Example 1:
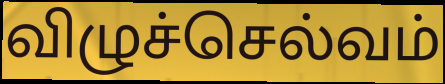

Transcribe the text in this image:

விழுச்செல்வம்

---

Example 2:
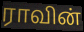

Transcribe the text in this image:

ராவின்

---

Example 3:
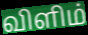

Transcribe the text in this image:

விளிம்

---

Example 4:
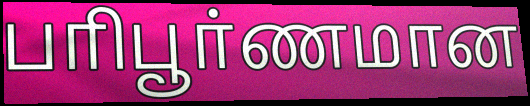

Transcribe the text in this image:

பரிபூர்ணமான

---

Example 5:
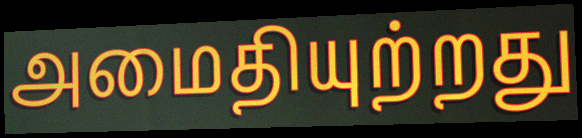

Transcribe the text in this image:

அமைதியுற்றது